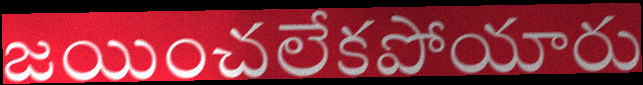
జయించలేకపోయారు